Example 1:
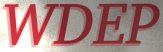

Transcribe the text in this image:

WDEP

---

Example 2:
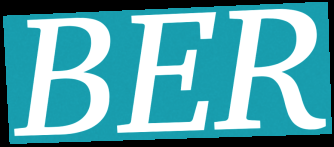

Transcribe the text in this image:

BER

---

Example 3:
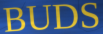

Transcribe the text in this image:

BUDS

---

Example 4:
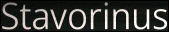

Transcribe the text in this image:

Stavorinus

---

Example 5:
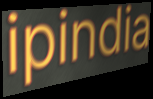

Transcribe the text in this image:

ipindia